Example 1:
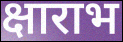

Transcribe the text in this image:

क्षाराभ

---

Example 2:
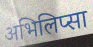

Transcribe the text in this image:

अभिलिप्सा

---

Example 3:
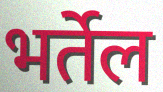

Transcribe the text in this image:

भर्तेल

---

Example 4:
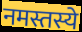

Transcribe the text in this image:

नमस्तस्ये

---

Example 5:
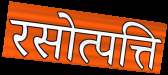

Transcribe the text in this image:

रसोत्पत्ति